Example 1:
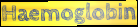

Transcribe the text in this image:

Haemoglobin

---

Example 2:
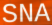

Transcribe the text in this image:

SNA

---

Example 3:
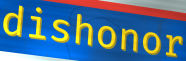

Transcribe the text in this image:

dishonor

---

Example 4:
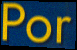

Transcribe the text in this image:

Por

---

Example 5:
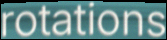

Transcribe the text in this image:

rotations